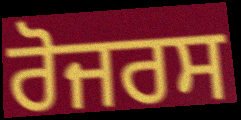
ਰੋਜਰਸ